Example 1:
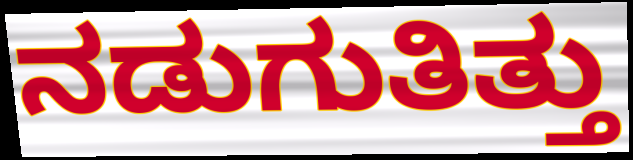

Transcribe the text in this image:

ನಡುಗುತಿತ್ತು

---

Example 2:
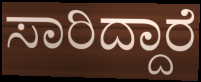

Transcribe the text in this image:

ಸಾರಿದ್ದಾರೆ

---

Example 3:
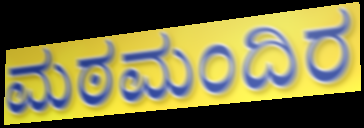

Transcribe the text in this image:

ಮಠಮಂದಿರ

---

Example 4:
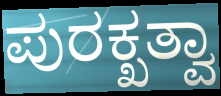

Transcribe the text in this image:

ಪುರಕ್ಖತ್ವಾ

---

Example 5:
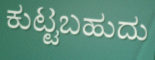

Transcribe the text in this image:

ಕುಟ್ಟಬಹುದು